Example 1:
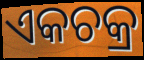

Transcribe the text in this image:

ଏକଚକ୍ର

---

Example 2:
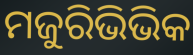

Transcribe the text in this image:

ମଜୁରିଭିଭିକ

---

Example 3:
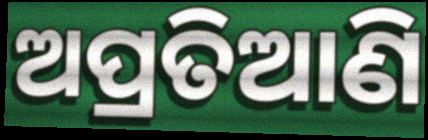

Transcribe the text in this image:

ଅପ୍ରତିଆଣି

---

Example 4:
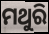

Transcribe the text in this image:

ମଥୁରି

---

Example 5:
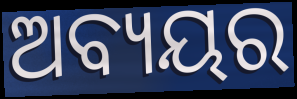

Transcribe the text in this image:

ଅବ୍ୟୟର